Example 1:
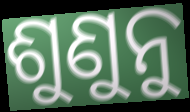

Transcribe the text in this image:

ଶୁଣୁନୁ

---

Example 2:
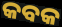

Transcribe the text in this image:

କବକ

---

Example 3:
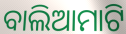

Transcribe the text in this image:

ବାଲିଆମାଟି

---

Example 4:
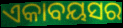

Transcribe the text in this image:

ଏକାବୟସର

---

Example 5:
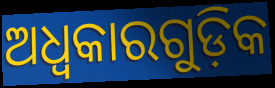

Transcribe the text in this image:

ଅଧ୍ବକାରଗୁଡ଼ିକ